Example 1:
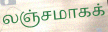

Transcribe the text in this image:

லஞ்சமாகக்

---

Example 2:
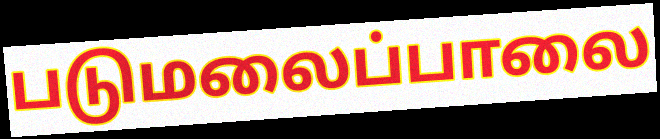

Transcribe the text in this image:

படுமலைப்பாலை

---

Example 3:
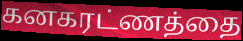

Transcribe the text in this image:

கனகரட்ணத்தை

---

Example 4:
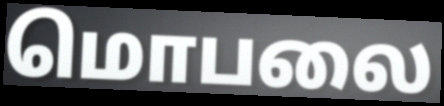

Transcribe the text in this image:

மொபலை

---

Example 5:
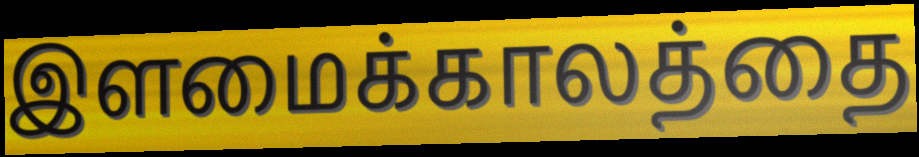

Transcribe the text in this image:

இளமைக்காலத்தை